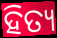
ହିତ୍ୟ